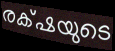
രക്‌ഷയുടെ